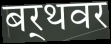
बर्थवर